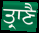
ਤ੍ਰਾਣੈ